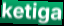
ketiga